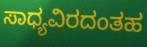
ಸಾಧ್ಯವಿರದಂತಹ